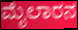
ಮೈಲಾರನ